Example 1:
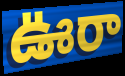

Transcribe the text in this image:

ఊరా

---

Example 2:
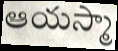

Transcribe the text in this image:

ఆయస్మా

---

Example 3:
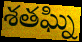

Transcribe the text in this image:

శతఘ్ని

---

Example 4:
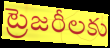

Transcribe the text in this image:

ట్రెజరీలకు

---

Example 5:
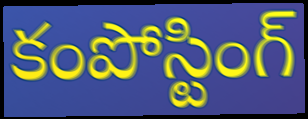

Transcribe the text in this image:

కంపోస్టింగ్